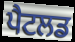
ਪੈਟਲਡ